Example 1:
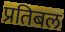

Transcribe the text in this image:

प्रतिबल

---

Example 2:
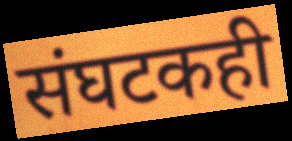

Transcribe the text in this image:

संघटकही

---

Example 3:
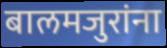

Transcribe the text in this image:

बालमजुरांना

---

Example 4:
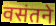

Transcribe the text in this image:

वसंतने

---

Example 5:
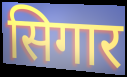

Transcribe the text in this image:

सिगार